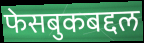
फेसबुकबद्दल